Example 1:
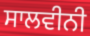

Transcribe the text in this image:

ਸਾਲਵੀਨੀ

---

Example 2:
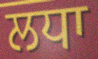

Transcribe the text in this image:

ਲਧਾ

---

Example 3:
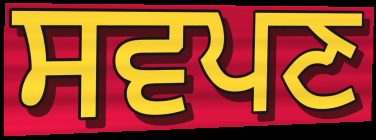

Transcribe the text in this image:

ਸਵਪਣ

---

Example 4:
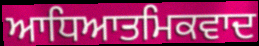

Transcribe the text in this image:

ਆਧਿਆਤਮਿਕਵਾਦ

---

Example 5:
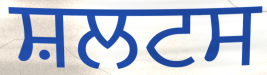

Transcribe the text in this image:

ਸ਼ਲਟਸ